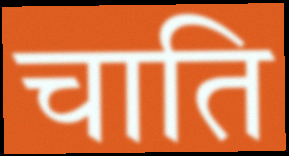
चाति